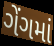
ગેંગમાં